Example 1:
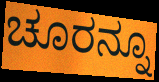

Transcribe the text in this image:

ಚೂರನ್ನೂ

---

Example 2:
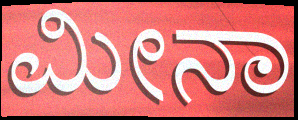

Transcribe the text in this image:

ಮೀನಾ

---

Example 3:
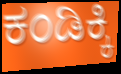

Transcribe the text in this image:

ಕಂಡಿಕ್ಕಿ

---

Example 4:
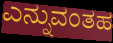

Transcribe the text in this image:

ಎನ್ನುವಂತಹ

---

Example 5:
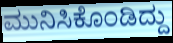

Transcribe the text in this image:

ಮುನಿಸಿಕೊಂಡಿದ್ದು